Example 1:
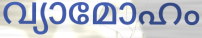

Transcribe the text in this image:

വ്യാമോഹം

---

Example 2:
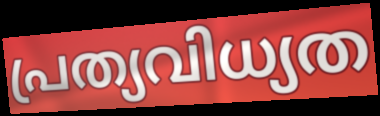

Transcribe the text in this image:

പ്രത്യവിധ്യത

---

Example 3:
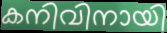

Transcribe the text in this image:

കനിവിനായി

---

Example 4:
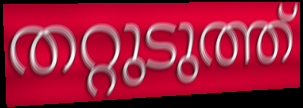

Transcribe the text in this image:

തറ്റുടുത്ത്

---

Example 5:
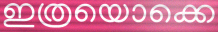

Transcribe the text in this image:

ഇത്രയൊക്കെ